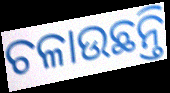
ଚଳାଉଛନ୍ତି